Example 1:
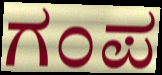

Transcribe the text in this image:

ಗಂಪ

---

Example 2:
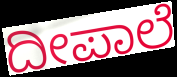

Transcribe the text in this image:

ದೀಪಾಲೆ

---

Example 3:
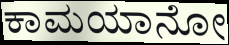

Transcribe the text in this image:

ಕಾಮಯಾನೋ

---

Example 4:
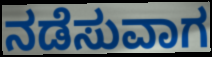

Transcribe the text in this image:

ನಡೆಸುವಾಗ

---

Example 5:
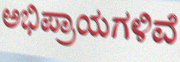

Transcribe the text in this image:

ಅಭಿಪ್ರಾಯಗಳಿವೆ